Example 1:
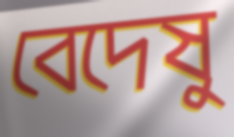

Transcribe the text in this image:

বেদেষু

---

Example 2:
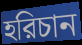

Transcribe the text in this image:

হরিচান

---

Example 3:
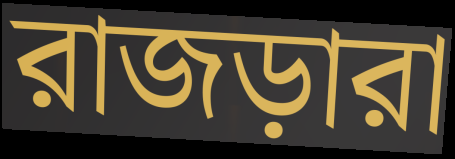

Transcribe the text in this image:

রাজড়ারা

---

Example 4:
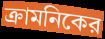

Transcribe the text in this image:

ক্রামনিকের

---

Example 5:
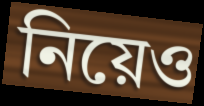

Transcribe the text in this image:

নিয়েও